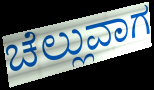
ಚೆಲ್ಲುವಾಗ